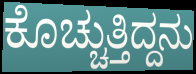
ಕೊಚ್ಚುತ್ತಿದ್ದನು